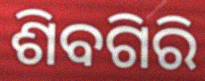
ଶିବଗିରି